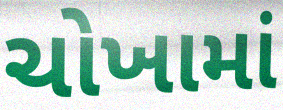
ચોખામાં